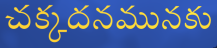
చక్కదనమునకు